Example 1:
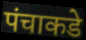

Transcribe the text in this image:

पंचाकडे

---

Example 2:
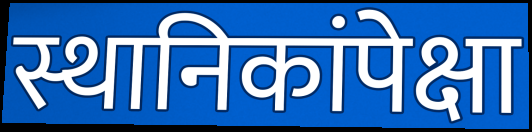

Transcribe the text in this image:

स्थानिकांपेक्षा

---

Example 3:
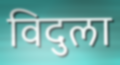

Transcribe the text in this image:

विदुला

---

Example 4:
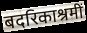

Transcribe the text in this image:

बदरिकाश्रमीं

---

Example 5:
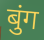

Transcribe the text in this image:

बुंग